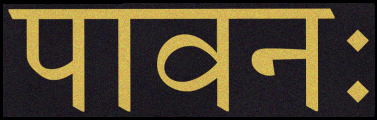
पावनः